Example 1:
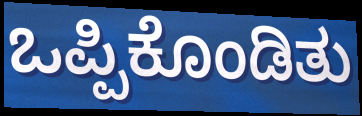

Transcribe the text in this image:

ಒಪ್ಪಿಕೊಂಡಿತು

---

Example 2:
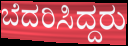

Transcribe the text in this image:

ಬೆದರಿಸಿದ್ದರು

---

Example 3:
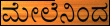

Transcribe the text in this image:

ಮೇಲೆನಿಂದ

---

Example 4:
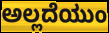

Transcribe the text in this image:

ಅಲ್ಲದೆಯುಂ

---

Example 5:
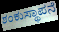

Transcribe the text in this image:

ಶಂಕುಸ್ಥಾಪನೆ